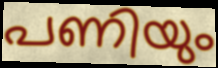
പണിയും